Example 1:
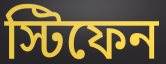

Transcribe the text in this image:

স্টিফেন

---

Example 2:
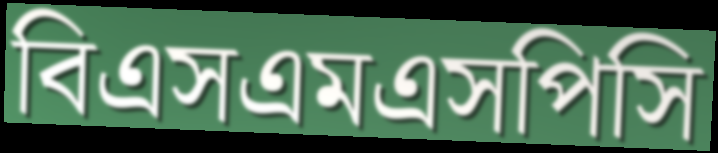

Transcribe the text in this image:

বিএসএমএসপিসি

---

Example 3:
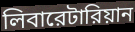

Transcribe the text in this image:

লিবারেটারিয়ান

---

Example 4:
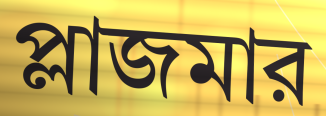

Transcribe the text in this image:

প্লাজমার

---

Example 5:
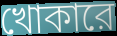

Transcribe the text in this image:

খোকারে